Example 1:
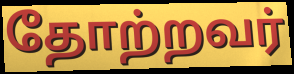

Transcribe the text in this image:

தோற்றவர்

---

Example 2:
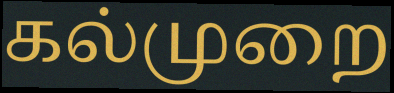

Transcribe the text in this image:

கல்முறை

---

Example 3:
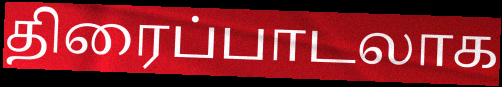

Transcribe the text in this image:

திரைப்பாடலாக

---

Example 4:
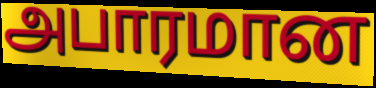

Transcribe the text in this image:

அபாரமான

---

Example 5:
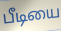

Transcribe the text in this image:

பீடியை